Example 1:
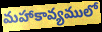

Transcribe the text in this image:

మహాకావ్యములో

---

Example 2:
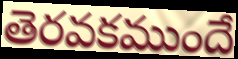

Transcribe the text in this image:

తెరవకముందే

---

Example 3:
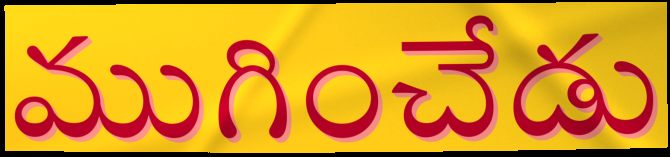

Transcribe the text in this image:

ముగించేడు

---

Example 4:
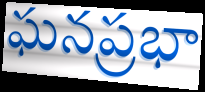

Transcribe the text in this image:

ఘనప్రభా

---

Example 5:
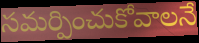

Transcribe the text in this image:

సమర్పించుకోవాలనే